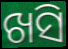
ଖସି